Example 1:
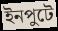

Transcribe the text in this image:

ইনপুটে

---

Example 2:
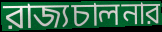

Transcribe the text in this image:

রাজ্যচালনার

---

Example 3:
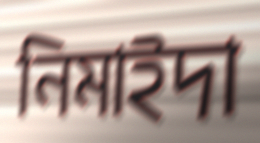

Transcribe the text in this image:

নিমাইদা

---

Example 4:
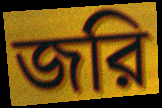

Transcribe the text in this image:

জরি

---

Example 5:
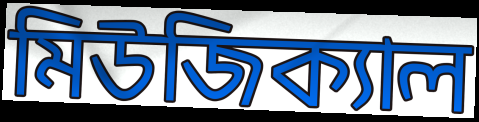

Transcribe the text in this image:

মিউজিক্যাল